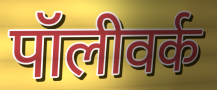
पॉलीवर्क